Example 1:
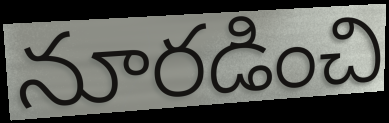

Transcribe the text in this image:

నూరడించి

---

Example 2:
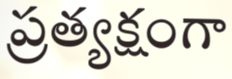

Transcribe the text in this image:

ప్రత్యక్షంగా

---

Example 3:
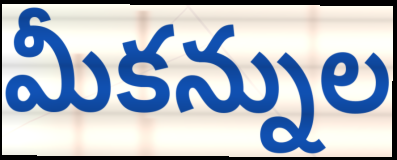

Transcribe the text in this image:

మీకన్నుల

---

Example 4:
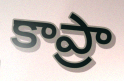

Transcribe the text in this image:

కాప్రా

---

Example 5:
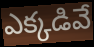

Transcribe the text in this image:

ఎక్కడివే